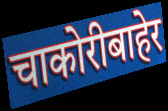
चाकोरीबाहेर